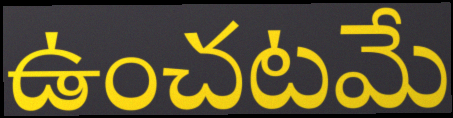
ఉంచటమే